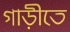
গাড়ীতে